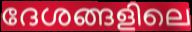
ദേശങ്ങളിലെ